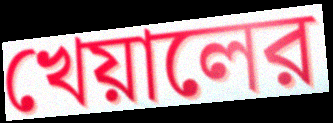
খেয়ালের